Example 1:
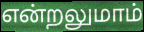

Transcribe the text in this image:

என்றலுமாம்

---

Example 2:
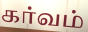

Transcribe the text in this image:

கர்வம்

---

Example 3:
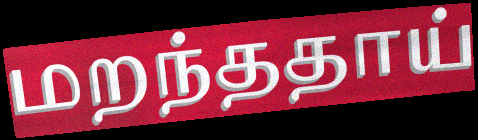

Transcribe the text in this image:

மறந்ததாய்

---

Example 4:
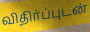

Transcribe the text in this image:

விதிர்ப்புடன்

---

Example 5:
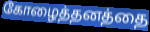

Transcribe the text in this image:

கோழைத்தனத்தை